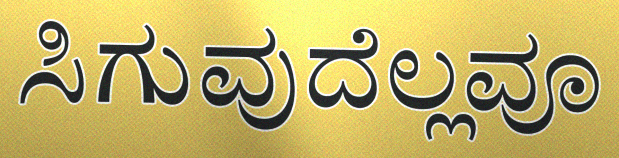
ಸಿಗುವುದೆಲ್ಲವೂ